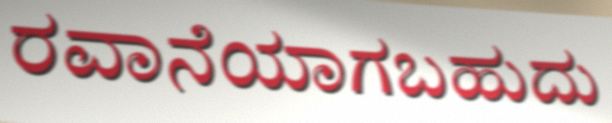
ರವಾನೆಯಾಗಬಹುದು